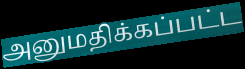
அனுமதிக்கப்பட்ட